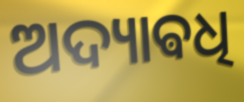
ଅଦ୍ୟାଵଧି